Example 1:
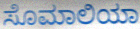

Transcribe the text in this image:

ಸೊಮಾಲಿಯಾ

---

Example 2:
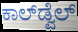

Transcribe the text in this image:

ಕಾಲ್‌ಡ್ವೆಲ್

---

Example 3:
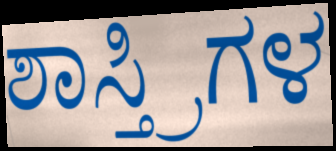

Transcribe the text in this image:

ಶಾಸ್ತ್ರಿಗಳ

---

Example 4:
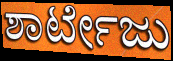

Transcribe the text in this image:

ಶಾರ್ಟೇಜು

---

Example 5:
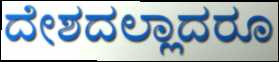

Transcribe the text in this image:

ದೇಶದಲ್ಲಾದರೂ